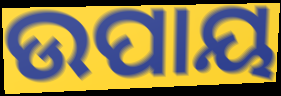
ଉପାୟ